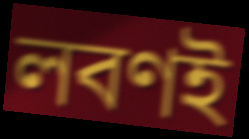
লবণই